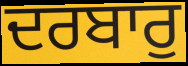
ਦਰਬਾਰੁ